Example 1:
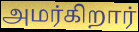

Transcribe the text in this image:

அமர்கிறார்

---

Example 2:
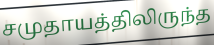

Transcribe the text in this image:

சமுதாயத்திலிருந்த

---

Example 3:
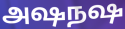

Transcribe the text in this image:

அஷநஷ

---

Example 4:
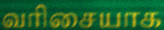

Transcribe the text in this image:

வரிசையாக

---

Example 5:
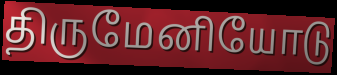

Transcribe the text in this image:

திருமேனியோடு